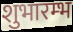
शुभारम्‍भ